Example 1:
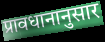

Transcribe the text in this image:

प्रावधानानुसार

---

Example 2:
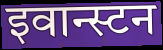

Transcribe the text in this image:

इवान्स्टन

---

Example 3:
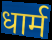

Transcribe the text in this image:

धार्म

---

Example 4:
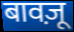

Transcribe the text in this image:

बावज़ू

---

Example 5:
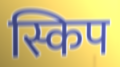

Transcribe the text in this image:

स्किप